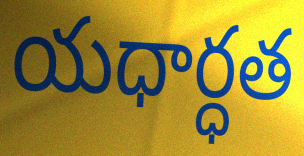
యధార్ధత